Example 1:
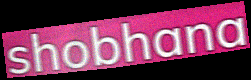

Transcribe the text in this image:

shobhana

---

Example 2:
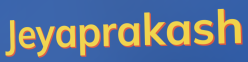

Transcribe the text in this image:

Jeyaprakash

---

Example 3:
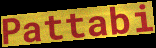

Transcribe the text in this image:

Pattabi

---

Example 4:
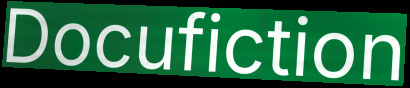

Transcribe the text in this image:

Docufiction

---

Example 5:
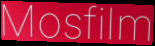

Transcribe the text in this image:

Mosfilm